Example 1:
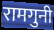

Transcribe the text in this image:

रामगुनी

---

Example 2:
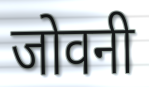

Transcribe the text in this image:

जोवनी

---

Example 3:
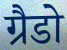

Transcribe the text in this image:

ग्रैडो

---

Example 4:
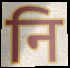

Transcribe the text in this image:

नि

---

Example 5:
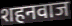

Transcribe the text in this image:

शहनवाज